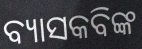
ବ୍ୟାସକବିଙ୍କ